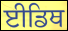
ਈਡਿਥ